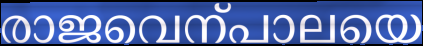
രാജവെന്പാലയെ